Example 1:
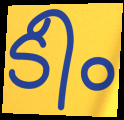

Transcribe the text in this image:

ടീം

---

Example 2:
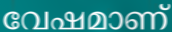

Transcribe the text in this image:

വേഷമാണ്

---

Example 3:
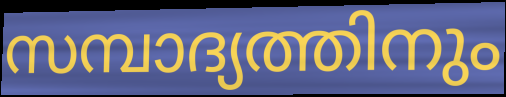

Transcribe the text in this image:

സമ്പാദ്യത്തിനും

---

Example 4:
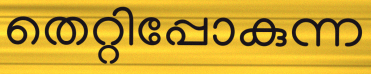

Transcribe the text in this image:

തെറ്റിപ്പോകുന്ന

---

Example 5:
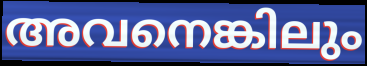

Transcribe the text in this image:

അവനെങ്കിലും